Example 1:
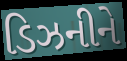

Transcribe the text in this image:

ડિઝનીને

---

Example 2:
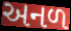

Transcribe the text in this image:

અનળ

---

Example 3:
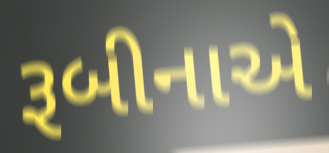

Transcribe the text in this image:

રૂબીનાએ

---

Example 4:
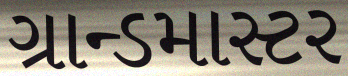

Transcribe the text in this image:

ગ્રાન્ડમાસ્ટર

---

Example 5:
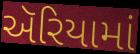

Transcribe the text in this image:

ઍરિયામાં